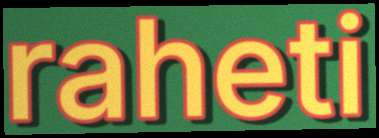
raheti